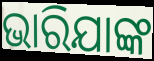
ଭାରିଯାଙ୍କ